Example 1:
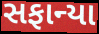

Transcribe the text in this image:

સફાન્યા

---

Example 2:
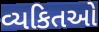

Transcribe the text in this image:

વ્યકિતઓ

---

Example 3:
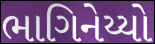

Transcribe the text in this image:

ભાગિનેય્યો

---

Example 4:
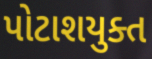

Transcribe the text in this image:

પોટાશયુક્ત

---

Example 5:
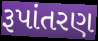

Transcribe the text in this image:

રૂપાંતરણ